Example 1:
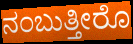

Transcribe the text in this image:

ನಂಬುತ್ತೀರೊ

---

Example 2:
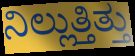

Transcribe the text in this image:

ನಿಲ್ಲುತ್ತಿತ್ತು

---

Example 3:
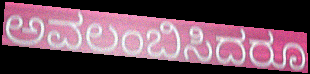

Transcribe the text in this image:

ಅವಲಂಬಿಸಿದರೂ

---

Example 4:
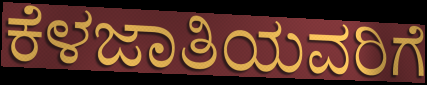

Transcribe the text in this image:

ಕೆಳಜಾತಿಯವರಿಗೆ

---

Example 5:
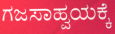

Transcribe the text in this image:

ಗಜಸಾಹ್ವಯಕ್ಕೆ